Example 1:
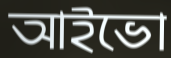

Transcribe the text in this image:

আইভো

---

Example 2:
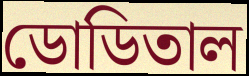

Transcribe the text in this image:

ডোডিতাল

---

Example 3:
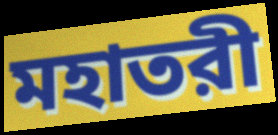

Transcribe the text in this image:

মহাতরী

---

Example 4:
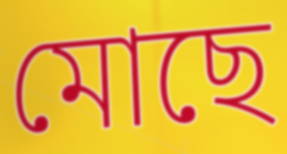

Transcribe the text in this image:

মোছে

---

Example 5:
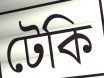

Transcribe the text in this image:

টেকি